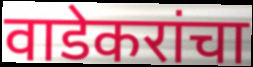
वाडेकरांचा